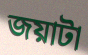
জয়াটা